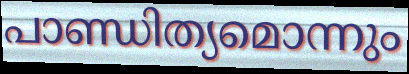
പാണ്ഡിത്യമൊന്നും